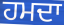
ਹਮਦਾ